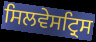
ਸਿਲਵੇਸਟ੍ਰਿਸ